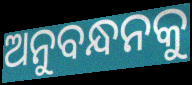
ଅନୁବନ୍ଧନକୁ